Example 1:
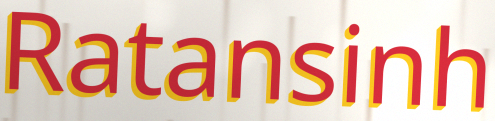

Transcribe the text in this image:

Ratansinh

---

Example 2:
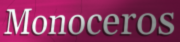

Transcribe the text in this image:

Monoceros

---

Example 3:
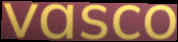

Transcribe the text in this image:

vasco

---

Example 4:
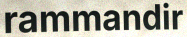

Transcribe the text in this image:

rammandir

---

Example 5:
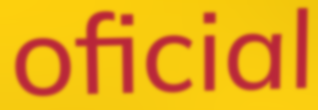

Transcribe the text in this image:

oficial